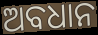
ଅବଧାନ